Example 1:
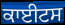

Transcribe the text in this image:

ਕਾਈਟਸ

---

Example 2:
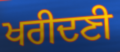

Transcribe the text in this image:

ਖਰੀਦਣੀ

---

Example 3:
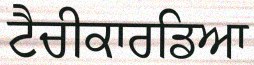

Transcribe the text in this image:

ਟੈਚੀਕਾਰਡਿਆ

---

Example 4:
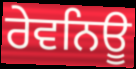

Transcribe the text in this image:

ਰੇਵਨਿਊ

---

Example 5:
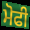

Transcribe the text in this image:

ਮੋਫੀ